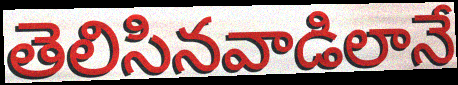
తెలిసినవాడిలానే